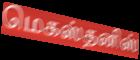
மெகஸ்தனிஸ்